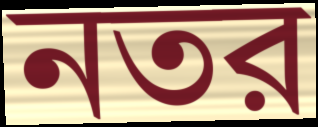
নতর